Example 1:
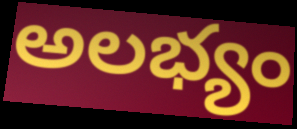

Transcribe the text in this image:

అలభ్యం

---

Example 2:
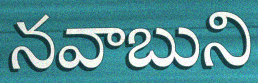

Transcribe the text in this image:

నవాబుని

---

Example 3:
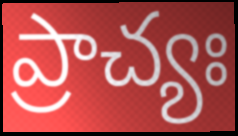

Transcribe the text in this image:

ప్రాచ్యః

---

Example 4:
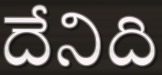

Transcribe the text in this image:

దేనిది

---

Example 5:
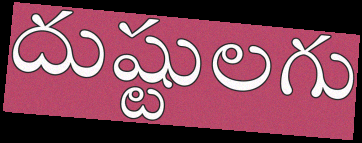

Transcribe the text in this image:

దుష్టులగు